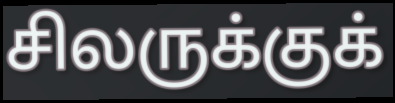
சிலருக்குக்